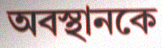
অবস্থানকে